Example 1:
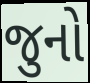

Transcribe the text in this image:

જુનો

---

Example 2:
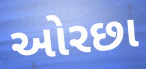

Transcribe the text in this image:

ઓરછા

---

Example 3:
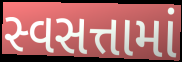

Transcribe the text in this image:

સ્વસત્તામાં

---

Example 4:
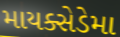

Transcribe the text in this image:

માયક્સેડેમા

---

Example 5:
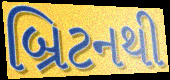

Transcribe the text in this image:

બ્રિટનથી